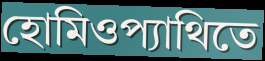
হোমিওপ্যাথিতে